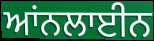
ਆਂਨਲਾਈਨ